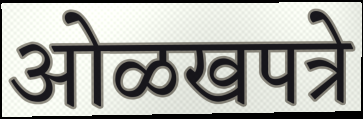
ओळखपत्रे